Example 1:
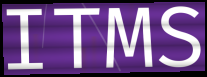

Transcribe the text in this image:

ITMS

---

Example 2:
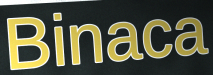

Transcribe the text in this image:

Binaca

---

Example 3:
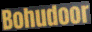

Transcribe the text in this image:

Bohudoor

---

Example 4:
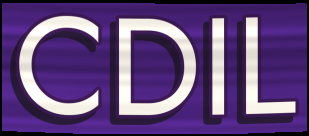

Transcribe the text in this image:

CDIL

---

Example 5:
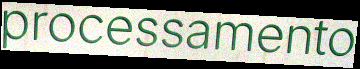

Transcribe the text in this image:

processamento